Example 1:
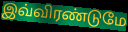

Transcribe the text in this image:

இவ்விரண்டுமே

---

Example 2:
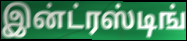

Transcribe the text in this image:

இன்ட்ரஸ்டிங்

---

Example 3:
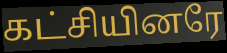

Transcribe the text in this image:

கட்சியினரே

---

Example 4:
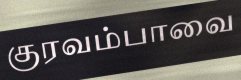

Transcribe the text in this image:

குரவம்பாவை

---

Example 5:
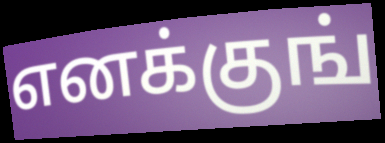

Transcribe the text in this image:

எனக்குங்